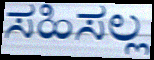
ಸಹಿಸಲ್ಲ